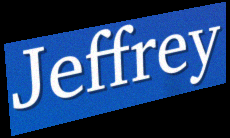
Jeffrey